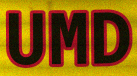
UMD